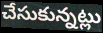
చేసుకున్నట్లు